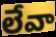
లేవా